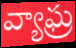
వ్యాఘ్ర